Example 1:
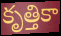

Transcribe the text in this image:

కృత్తికా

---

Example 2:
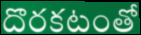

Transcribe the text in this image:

దొరకటంతో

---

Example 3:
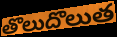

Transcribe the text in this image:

తొలుదొలుత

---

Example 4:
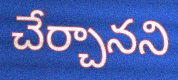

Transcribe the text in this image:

చేర్చానని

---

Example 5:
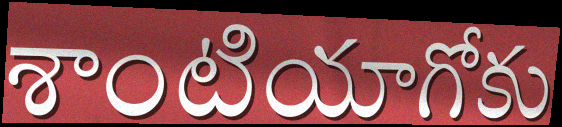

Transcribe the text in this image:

శాంటియాగోకు